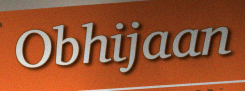
Obhijaan